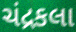
ચંદ્રકલા